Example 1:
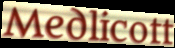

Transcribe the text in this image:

Medlicott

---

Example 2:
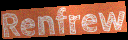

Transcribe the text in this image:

Renfrew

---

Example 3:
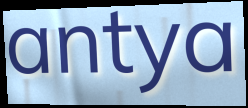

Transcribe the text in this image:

antya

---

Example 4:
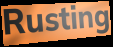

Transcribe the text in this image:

Rusting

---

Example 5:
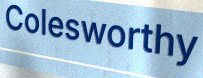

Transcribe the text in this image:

Colesworthy